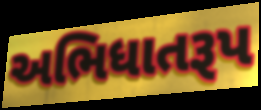
અભિધાતરૂપ